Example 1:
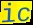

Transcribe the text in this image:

ic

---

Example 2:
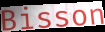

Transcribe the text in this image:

Bisson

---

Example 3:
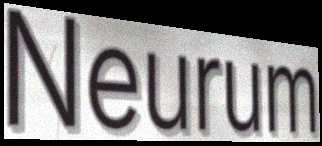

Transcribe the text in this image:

Neurum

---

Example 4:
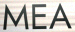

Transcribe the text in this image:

MEA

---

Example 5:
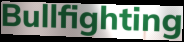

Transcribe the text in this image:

Bullfighting